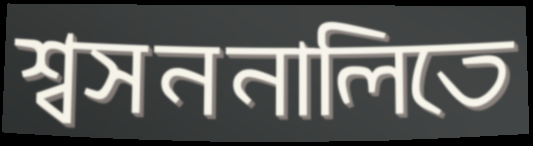
শ্বসননালিতে